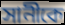
সানীকে